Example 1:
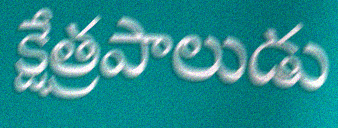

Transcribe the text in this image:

క్షేత్రపాలుడు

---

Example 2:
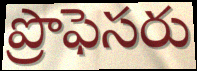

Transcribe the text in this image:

ప్రొఫెసరు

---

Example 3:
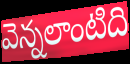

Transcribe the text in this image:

వెన్నలాంటిది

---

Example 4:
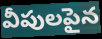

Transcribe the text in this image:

వీపులపైన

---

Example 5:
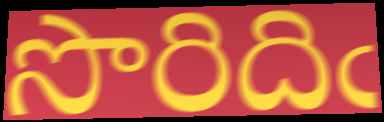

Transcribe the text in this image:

సొరిదిఁ